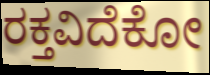
ರಕ್ತವಿದೆಕೋ